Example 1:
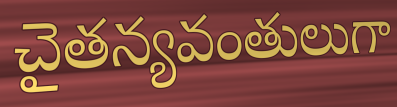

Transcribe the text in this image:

చైతన్యవంతులుగా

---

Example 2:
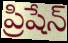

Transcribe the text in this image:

ప్రిషేన్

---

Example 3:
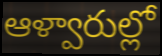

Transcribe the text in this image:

ఆళ్వారుల్లో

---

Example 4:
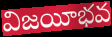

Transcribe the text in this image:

విజయీభవ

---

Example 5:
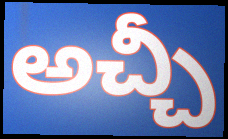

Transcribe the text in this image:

అచ్చీ